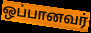
ஒப்பானவர்